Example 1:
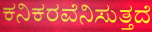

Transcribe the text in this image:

ಕನಿಕರವೆನಿಸುತ್ತದೆ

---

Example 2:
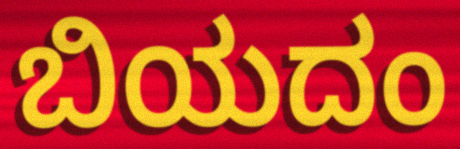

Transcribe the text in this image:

ಬಿಯದಂ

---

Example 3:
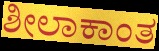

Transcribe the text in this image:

ಶೀಲಾಕಾಂತ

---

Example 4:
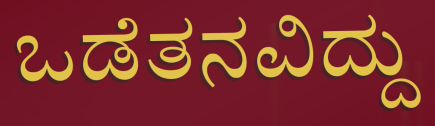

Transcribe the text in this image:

ಒಡೆತನವಿದ್ದು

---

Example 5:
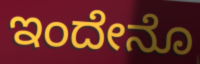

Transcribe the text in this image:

ಇಂದೇನೊ